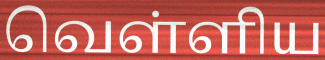
வெள்ளிய